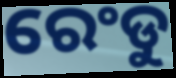
ରେଂଡୁ